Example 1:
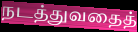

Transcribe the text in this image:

நடத்துவதைத்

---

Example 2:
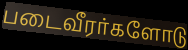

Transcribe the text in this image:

படைவீரர்களோடு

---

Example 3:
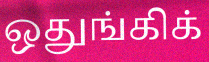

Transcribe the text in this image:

ஒதுங்கிக்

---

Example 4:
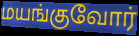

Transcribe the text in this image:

மயங்குவோர்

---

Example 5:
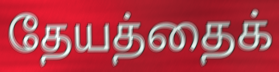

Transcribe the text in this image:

தேயத்தைக்